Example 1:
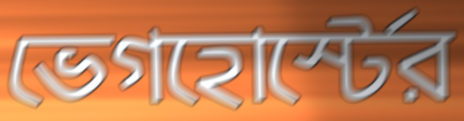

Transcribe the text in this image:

ভেগহোর্স্টের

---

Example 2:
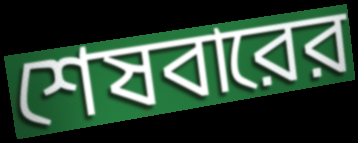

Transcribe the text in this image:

শেষবারের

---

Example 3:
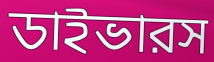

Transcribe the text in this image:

ডাইভারস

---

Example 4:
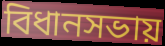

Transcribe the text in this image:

বিধানসভায়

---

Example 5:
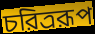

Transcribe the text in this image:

চরিত্ররূপ